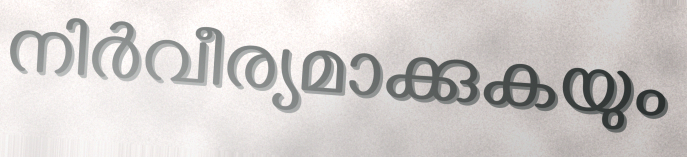
നിർവീര്യമാക്കുകയും